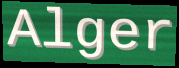
Alger